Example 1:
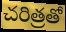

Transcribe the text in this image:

చరిత్రతో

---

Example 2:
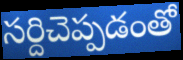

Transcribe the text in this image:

సర్దిచెప్పడంతో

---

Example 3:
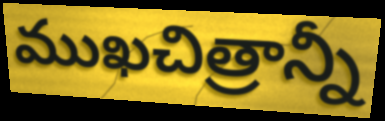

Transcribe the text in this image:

ముఖచిత్రాన్నీ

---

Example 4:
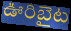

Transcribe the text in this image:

ఊరిబైట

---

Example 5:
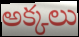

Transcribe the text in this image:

అక్కలు